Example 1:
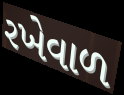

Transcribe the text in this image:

રખેવાળ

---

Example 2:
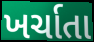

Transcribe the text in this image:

ખર્ચાતા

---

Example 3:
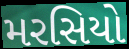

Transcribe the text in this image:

મરસિયો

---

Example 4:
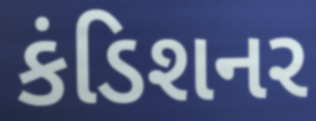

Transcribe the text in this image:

કંડિશનર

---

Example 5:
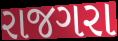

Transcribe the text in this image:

રાજગરા